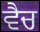
ਵੈਚ